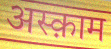
अस्क़ाम